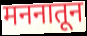
मननातून